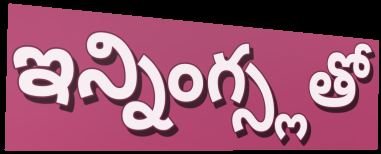
ఇన్నింగ్స్లతో